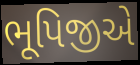
ભૂપિજીએ